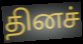
தினச்